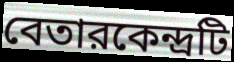
বেতারকেন্দ্রটি